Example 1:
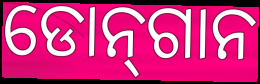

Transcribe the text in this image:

ଡୋନ୍‌ଗାନ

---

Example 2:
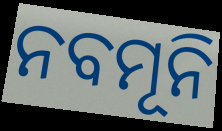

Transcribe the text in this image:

ନବମୂନି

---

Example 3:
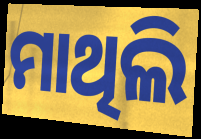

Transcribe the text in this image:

ମାଥିଲି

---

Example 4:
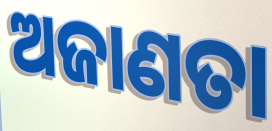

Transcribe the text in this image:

ଅଜାଣତା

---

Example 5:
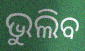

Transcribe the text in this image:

ଭୁଲିବ